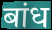
बांध